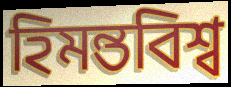
হিমন্তবিশ্ব